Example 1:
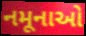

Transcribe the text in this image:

નમૂનાઓ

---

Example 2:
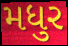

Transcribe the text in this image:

મધુર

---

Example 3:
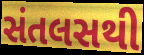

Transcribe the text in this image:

સંતલસથી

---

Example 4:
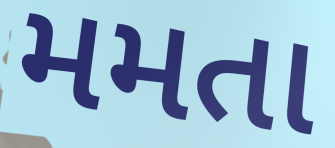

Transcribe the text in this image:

મમતા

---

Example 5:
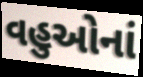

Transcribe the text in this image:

વહુઓનાં